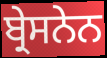
ਬ੍ਰੇਸਨੇਨ